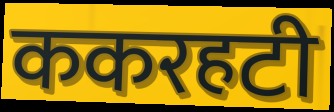
ककरहटी